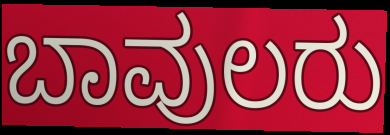
ಬಾವುಲರು